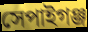
সেপাইগঞ্জ